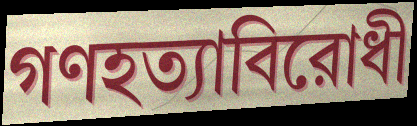
গণহত্যাবিরোধী